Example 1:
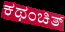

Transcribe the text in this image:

ಕಥಂಚಿತ್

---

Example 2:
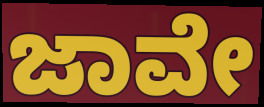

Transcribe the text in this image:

ಜಾವೇ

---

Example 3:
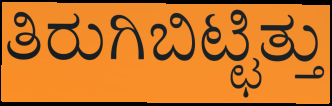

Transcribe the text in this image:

ತಿರುಗಿಬಿಟ್ಟಿತ್ತು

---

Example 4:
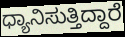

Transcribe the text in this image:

ಧ್ಯಾನಿಸುತ್ತಿದ್ದಾರೆ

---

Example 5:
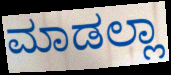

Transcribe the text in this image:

ಮಾಡಲ್ಲಾ